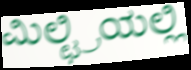
ಮಿಲ್ಟ್ರಿಯಲ್ಲಿ